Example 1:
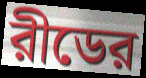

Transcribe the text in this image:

রীডের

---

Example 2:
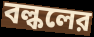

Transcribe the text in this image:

বল্কলের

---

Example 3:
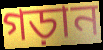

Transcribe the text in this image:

গড়ান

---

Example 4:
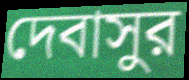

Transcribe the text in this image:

দেবাসুর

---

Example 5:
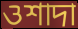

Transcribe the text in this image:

ওশাদা